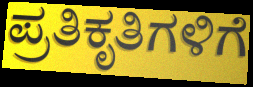
ಪ್ರತಿಕೃತಿಗಳಿಗೆ